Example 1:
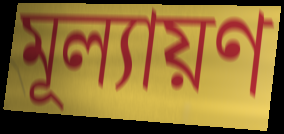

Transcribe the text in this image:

মূল্যায়ণ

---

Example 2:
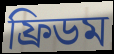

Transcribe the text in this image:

ফ্ৰিডম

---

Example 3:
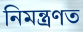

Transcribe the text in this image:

নিমন্ত্ৰণত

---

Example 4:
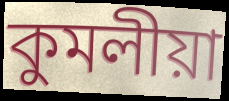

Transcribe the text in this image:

কুমলীয়া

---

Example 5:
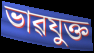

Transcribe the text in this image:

ভাৱযুক্ত